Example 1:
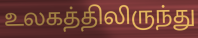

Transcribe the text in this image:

உலகத்திலிருந்து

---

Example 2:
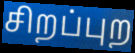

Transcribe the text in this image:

சிறப்புற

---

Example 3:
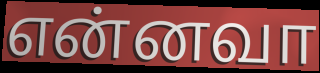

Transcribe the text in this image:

என்னவா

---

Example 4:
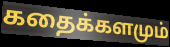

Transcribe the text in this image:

கதைக்களமும்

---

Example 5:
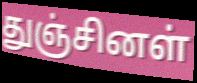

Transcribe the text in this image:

துஞ்சினள்